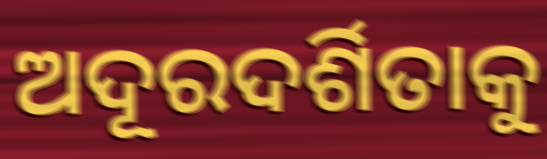
ଅଦୂରଦର୍ଶିତାକୁ